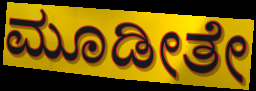
ಮೂಡೀತೇ